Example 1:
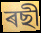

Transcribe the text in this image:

ৰছী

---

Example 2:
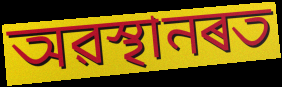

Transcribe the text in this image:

অৱস্থানৰত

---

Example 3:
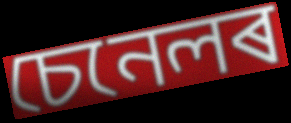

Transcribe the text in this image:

চেনেলৰ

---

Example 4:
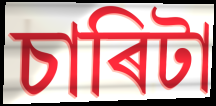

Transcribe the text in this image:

চাৰিটা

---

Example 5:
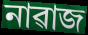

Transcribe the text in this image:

নাৱাজ